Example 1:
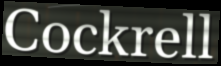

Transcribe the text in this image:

Cockrell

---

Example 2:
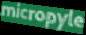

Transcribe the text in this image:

micropyle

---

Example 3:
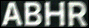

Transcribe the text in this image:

ABHR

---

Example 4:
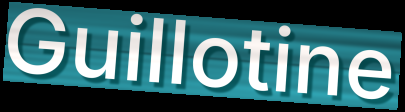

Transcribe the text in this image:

Guillotine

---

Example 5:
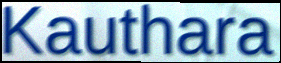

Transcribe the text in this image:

Kauthara